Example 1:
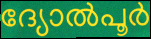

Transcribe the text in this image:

ദ്യോൽപൂർ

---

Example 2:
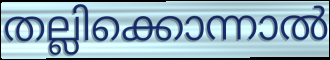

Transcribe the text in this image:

തല്ലിക്കൊന്നാൽ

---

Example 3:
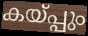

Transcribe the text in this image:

കയ്പ്പും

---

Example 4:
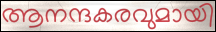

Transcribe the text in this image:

ആനന്ദകരവുമായി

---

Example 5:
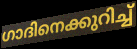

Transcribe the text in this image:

ഗാദിനെക്കുറിച്ച്